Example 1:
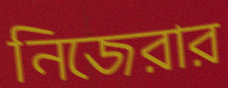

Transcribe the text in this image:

নিজেরার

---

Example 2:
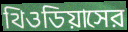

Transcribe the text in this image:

থিওডিয়াসের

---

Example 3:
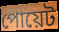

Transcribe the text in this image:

পোয়েট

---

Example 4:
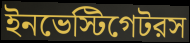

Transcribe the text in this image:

ইনভেস্টিগেটরস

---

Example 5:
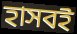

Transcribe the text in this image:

হাসবই